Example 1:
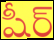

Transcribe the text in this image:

షీర్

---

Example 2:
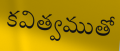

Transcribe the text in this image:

కవిత్వముతో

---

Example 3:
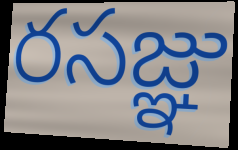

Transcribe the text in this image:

రసజ్ఞు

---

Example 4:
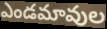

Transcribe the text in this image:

ఎండమావుల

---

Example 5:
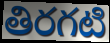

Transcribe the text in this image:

తిరగటి